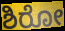
ಶಿರೋ